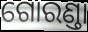
ଗୋରଣ୍ଡା